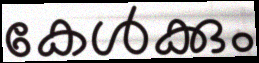
കേൾക്കും